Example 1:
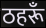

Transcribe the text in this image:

ठहरूँ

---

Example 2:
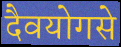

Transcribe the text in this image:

दैवयोगसे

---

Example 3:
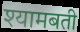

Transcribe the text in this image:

श्यामबती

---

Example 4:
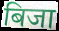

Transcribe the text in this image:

बिजा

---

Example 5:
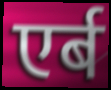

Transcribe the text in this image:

एर्ब